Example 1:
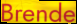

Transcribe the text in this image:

Brende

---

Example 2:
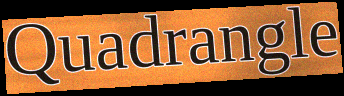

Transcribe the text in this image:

Quadrangle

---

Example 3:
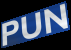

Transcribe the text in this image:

PUN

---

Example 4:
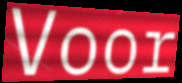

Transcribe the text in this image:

Voor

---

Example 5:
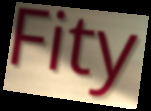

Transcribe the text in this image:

Fity